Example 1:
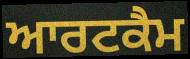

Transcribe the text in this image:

ਆਰਟਕੈਮ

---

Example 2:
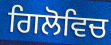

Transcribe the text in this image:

ਗਿਲੋਵਿਚ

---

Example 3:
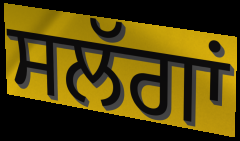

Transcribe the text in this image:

ਸਲੱਗਾਂ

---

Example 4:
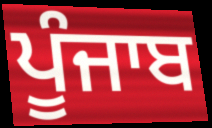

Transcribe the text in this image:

ਪੂੰਜਾਬ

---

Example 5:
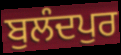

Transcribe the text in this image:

ਬੁਲੰਦਪੁਰ